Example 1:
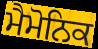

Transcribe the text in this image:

ਮੈਮੋਨਿਕ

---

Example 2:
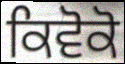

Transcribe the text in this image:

ਕਿਵੋਕੋ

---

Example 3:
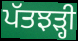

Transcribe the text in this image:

ਪੱਤਝੜ੍ਹੀ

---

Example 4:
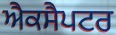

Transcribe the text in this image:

ਐਕਸੈਪਟਰ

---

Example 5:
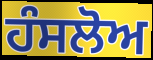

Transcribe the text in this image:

ਹੰਸਲੋਅ